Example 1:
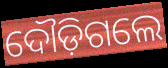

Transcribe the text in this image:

ଦୌଡ଼ିଗଲେ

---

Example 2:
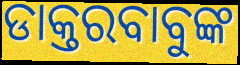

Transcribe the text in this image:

ଡାକ୍ତରବାବୁଙ୍କ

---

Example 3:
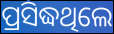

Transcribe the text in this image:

ପ୍ରସିଦ୍ଧଥିଲେ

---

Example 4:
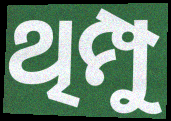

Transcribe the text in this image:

ଥିମ୍ପୁ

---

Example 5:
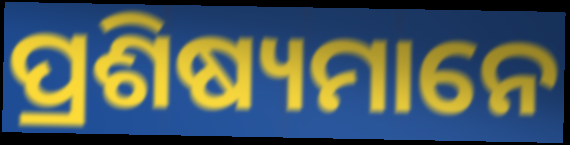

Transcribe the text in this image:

ପ୍ରଶିଷ୍ୟମାନେ